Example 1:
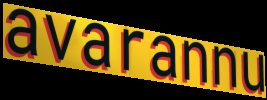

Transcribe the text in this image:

avarannu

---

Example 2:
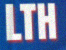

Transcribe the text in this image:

LTH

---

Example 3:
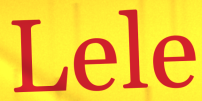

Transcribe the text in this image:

Lele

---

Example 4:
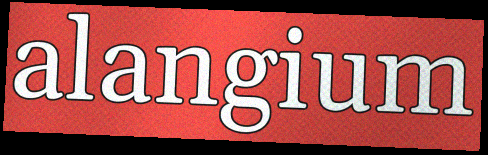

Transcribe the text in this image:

alangium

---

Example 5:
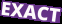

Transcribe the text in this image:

EXACT